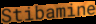
Stibamine